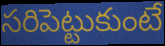
సరిపెట్టుకుంటే